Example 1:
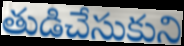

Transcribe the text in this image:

తుడిచేసుకుని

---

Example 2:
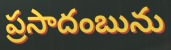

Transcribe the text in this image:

ప్రసాదంబును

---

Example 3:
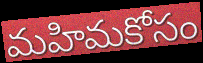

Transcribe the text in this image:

మహిమకోసం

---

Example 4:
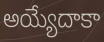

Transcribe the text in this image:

అయ్యేదాకా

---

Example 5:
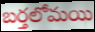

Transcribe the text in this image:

బర్తలోమయి